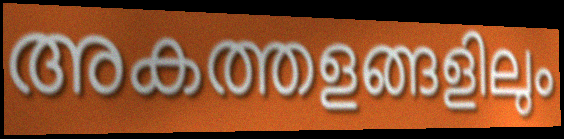
അകത്തളങ്ങളിലും